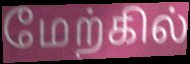
மேற்கில்